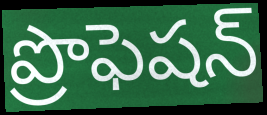
ప్రొఫెషన్